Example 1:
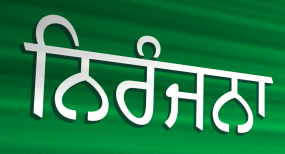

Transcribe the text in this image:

ਨਿਰੰਜਨਾ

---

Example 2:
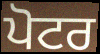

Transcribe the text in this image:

ਪੋਟਰ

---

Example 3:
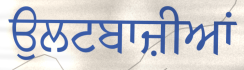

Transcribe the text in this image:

ਉਲਟਬਾਜ਼ੀਆਂ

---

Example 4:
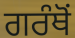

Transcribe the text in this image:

ਗਰੰਥੋਂ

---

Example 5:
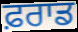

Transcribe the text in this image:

ਫ਼ਰਾਡ